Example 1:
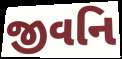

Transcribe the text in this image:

જીવનિ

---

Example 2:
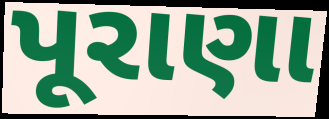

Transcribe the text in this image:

પૂરાણા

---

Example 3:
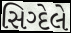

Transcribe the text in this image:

સિગ્દેલે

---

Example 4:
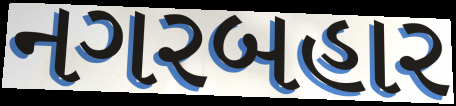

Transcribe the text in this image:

નગરબહાર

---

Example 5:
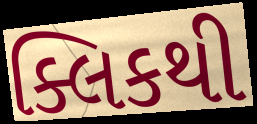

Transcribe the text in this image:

ક્લિકથી